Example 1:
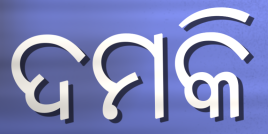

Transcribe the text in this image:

ଦମକି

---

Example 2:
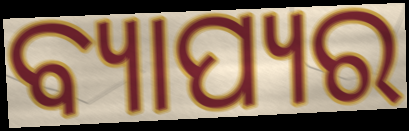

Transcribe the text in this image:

ବ୍ୟାପ୍ୟର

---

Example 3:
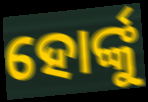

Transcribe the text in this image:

ହୋର୍ଙ୍କୁ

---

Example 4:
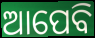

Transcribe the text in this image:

ଆପେବି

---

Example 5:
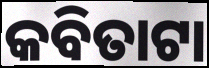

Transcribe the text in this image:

କବିତାଟା